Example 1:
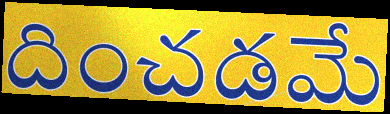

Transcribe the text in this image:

దించడమే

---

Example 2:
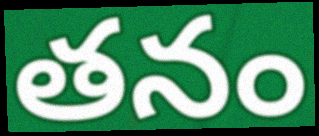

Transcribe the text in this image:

తనం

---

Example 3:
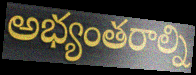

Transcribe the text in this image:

అభ్యంతరాల్ని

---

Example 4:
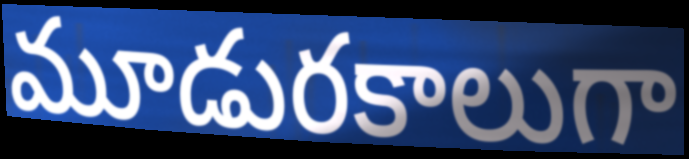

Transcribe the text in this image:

మూడురకాలుగా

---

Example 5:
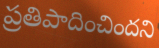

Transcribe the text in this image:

ప్రతిపాదించిందని